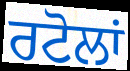
ਰਟੋਲਾਂ